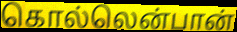
கொல்லென்பான்